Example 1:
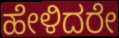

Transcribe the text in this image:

ಹೇಳಿದರೇ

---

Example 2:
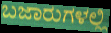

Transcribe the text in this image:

ಬಜಾರುಗಳಲ್ಲಿ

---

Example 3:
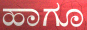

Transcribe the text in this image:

ಹಾಗೂ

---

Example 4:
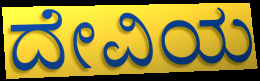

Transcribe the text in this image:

ದೇವಿಯ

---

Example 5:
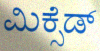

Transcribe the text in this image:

ಮಿಕ್ಸೆಡ್